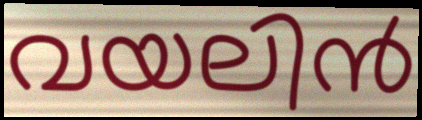
വയലിൻ